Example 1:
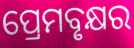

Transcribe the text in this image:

ପ୍ରେମବୃକ୍ଷର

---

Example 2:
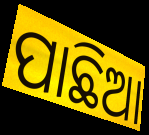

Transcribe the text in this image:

ପାଛିଆ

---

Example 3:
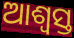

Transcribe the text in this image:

ଆଶ୍ଵସ୍ତ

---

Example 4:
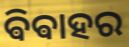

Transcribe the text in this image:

ଵିଵାହର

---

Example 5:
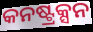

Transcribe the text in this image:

କନଷ୍ଟ୍ରକ୍ସନ